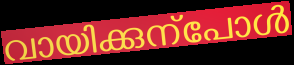
വായിക്കുന്പോൾ